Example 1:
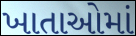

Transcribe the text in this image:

ખાતાઓમાં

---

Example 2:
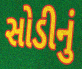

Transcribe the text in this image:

સોડીનું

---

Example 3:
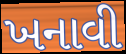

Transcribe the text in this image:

ખનાવી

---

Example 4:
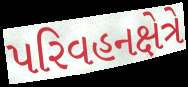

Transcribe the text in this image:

પરિવહનક્ષેત્રે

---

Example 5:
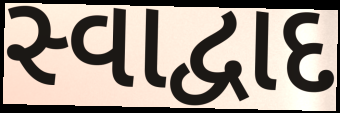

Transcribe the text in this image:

સ્વાદ્વાદ